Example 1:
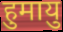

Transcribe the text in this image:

हुमायु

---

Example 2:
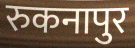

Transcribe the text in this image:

रुकनापुर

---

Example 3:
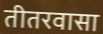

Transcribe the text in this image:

तीतरवासा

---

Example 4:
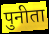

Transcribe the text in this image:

पुनीता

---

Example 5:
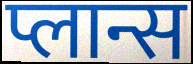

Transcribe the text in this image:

प्लान्स